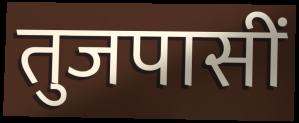
तुजपासीं